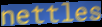
nettles